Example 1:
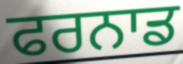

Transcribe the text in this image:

ਫਰਨਾਡ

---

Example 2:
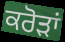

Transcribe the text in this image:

ਕਰੋਡ਼ਾਂ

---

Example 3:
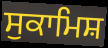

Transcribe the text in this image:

ਸੁਕਾਮਿਸ਼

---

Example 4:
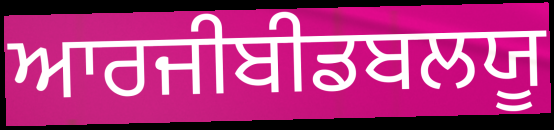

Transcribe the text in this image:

ਆਰਜੀਬੀਡਬਲਯੂ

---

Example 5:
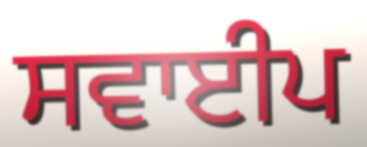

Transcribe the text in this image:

ਸਵਾਈਪ